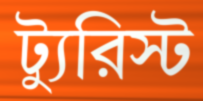
ট্যুরিস্ট